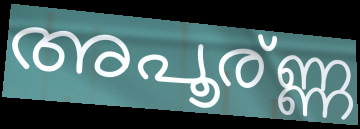
അപൂര്ണ്ണ